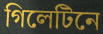
গিলেটিনে